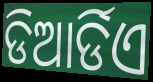
ଡିଆର୍ଡିଏ